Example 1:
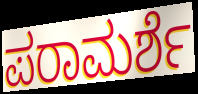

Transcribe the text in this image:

ಪರಾಮರ್ಶೆ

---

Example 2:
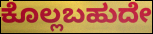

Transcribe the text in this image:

ಕೊಲ್ಲಬಹುದೇ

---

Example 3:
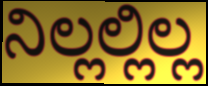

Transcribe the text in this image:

ನಿಲ್ಲಲ್ಲಿಲ್ಲ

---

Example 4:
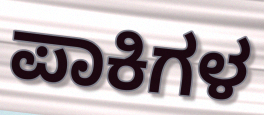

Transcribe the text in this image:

ಪಾಕಿಗಳ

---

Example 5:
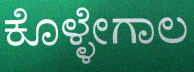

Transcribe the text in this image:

ಕೊಳ್ಳೇಗಾಲ